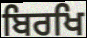
ਬਿਰਖਿ